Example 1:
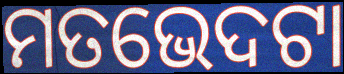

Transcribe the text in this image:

ମତଭେଦଟା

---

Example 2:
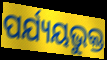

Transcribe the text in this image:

ପର୍ଯ୍ୟୟଭୁକ୍ତ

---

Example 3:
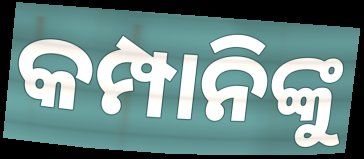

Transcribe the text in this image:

କମ୍ପାନିଙ୍କୁ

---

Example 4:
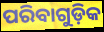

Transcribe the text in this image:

ପରିବାଗୁଡ଼ିକ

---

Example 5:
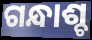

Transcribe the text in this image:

ଗନ୍ଧାଶ୍ଚ